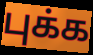
புக்க